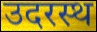
उदरस्थ